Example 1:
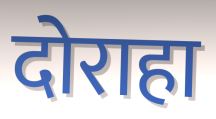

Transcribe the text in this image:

दोराहा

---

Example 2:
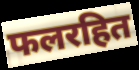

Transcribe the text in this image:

फलरहित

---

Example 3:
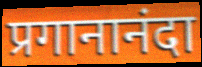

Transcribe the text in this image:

प्रगानानंदा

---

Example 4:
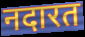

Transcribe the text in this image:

नदारत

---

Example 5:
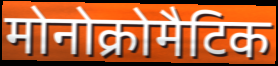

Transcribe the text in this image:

मोनोक्रोमैटिक